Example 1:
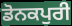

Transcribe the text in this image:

ਡੋਨਕਪੁਰੀ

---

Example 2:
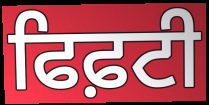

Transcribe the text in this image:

ਫਿਫ਼ਟੀ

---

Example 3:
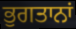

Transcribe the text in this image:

ਭੁਗਤਾਨਾਂ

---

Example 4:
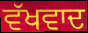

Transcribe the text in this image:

ਵੱਖਵਾਦ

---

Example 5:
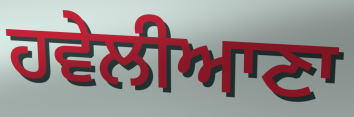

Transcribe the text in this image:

ਹਵੇਲੀਆਣਾ